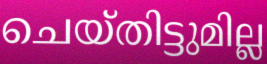
ചെയ്തിട്ടുമില്ല